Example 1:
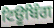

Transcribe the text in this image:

ਟਿਊਬਿੰਗ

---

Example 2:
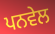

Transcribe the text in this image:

ਪਨਵੇਲ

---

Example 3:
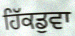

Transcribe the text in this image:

ਹਿੱਕਡੁਵਾ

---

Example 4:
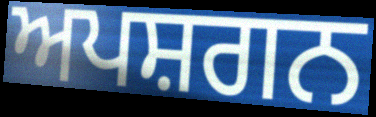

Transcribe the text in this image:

ਅਪਸ਼ਗਨ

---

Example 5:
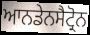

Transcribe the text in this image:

ਆਨਡੇਨਸੈਟ੍ਰੋਨ